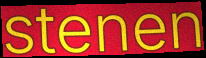
stenen